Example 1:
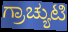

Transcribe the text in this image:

ಗ್ರಾಚ್ಯುಟಿ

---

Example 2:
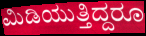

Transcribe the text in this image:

ಮಿಡಿಯುತ್ತಿದ್ದರೂ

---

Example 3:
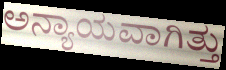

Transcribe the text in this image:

ಅನ್ಯಾಯವಾಗಿತ್ತು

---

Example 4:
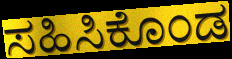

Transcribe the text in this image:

ಸಹಿಸಿಕೊಂಡ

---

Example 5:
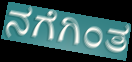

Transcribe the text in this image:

ನಗೆಗಿಂತ